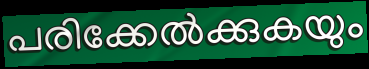
പരിക്കേൽക്കുകയും